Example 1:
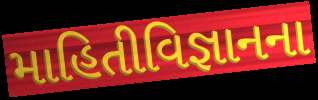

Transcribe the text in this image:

માહિતીવિજ્ઞાનના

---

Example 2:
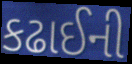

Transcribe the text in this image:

કઢાઈની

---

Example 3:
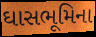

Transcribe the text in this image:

ઘાસભૂમિના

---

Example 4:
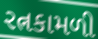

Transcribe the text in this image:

રત્નકામળી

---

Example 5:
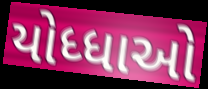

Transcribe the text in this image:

યોધ્ધાઓ